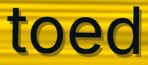
toed